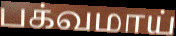
பக்வமாய்